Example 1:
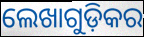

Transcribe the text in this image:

ଲେଖାଗୁଡ଼ିକର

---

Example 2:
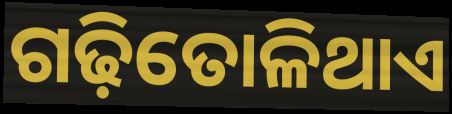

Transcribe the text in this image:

ଗଢ଼ିତୋଳିଥାଏ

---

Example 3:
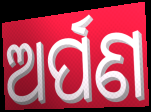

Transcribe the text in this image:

ଅର୍ପଣ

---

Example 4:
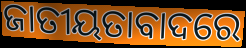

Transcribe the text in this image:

ଜାତୀୟତାବାଦରେ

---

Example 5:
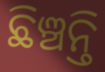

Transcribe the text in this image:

ଛିଞ୍ଚନ୍ତି